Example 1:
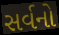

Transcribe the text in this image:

સર્વનો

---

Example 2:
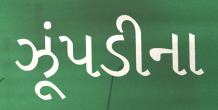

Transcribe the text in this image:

ઝૂંપડીના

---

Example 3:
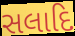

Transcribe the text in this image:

સલાદિ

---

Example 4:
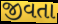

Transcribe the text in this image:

જીવતા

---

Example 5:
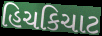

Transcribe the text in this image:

હિચકિચાટ